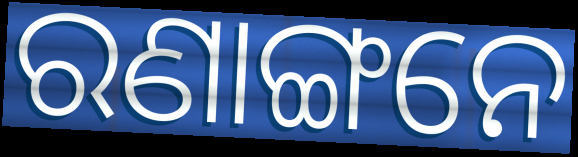
ରଣାଙ୍ଗନେ